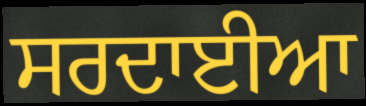
ਸਰਦਾਈਆ